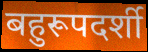
बहुरूपदर्शी